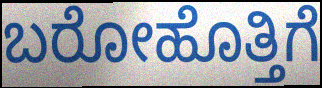
ಬರೋಹೊತ್ತಿಗೆ